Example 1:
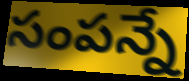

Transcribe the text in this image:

సంపన్నే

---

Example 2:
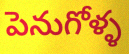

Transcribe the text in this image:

పెనుగోళ్ళ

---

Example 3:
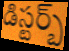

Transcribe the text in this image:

డిస్టర్బ్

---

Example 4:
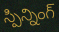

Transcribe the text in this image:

స్పిన్నింగ్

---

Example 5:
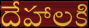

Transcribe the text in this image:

దేహాలకి